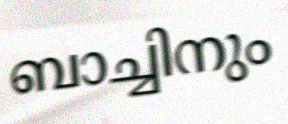
ബാച്ചിനും